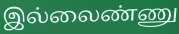
இல்லைண்ணு